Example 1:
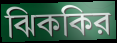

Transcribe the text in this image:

ঝিককির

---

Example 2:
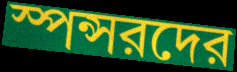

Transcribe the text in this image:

স্পন্সরদের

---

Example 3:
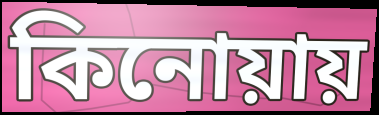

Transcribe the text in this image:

কিনোয়ায়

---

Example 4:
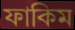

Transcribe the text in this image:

ফাকিম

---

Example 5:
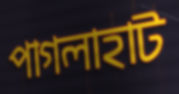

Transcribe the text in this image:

পাগলাহাট